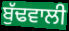
ਬੁੱਢਵਾਲੀ